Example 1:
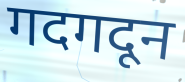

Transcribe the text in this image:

गदगदून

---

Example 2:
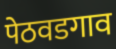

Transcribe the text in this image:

पेठवडगाव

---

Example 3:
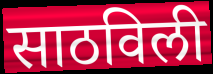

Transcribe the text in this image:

साठविली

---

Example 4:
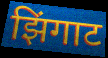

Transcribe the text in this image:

झिंगाट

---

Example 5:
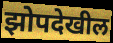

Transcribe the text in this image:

झोपदेखील